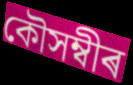
কৌসম্বীৰ